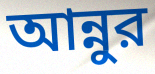
আন্নুর